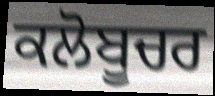
ਕਲੋਬੂਚਰ